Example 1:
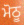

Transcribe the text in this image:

ਮੋਠੂ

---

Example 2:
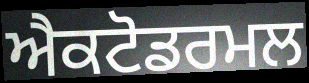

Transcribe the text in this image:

ਐਕਟੋਡਰਮਲ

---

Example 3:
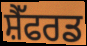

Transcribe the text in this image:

ਸ਼ੈੱਫਰਡ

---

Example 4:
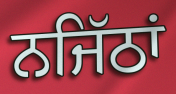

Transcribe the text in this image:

ਨਜਿੱਠਾਂ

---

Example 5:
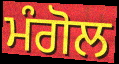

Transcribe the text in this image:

ਮੰਗੋਲ